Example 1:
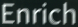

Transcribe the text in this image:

Enrich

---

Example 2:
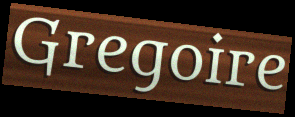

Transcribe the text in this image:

Gregoire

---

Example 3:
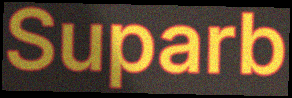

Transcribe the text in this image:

Suparb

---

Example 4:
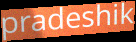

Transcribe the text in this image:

pradeshik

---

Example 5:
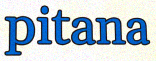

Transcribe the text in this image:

pitana